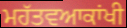
ਮਹੱਤਵਆਕਾਂਖੀ